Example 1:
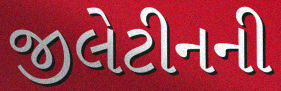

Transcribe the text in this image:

જીલેટીનની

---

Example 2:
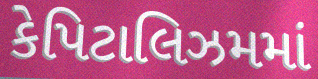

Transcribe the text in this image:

કેપિટાલિઝમમાં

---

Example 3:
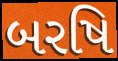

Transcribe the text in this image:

બરષિ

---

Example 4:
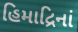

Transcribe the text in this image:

હિમાદ્રિનાં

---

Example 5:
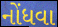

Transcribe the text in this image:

નોંધવા